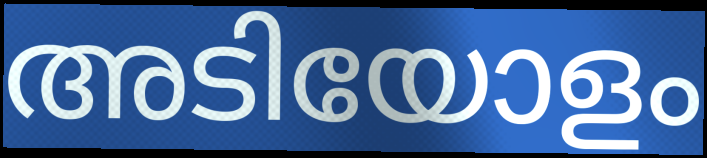
അടിയോളം